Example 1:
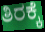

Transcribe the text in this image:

ತಿರಕ್ಕೆ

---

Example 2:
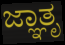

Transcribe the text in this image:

ಜ್ಞಾತೃ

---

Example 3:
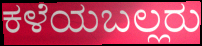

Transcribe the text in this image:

ಕಳೆಯಬಲ್ಲರು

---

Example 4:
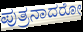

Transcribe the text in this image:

ಪುತ್ರನಾದರೋ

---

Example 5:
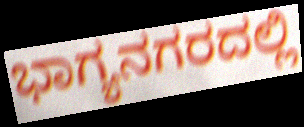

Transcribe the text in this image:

ಭಾಗ್ಯನಗರದಲ್ಲಿ